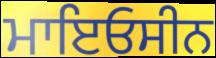
ਮਾਇਓਸੀਨ